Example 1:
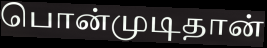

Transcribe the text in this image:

பொன்முடிதான்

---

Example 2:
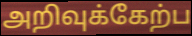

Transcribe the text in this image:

அறிவுக்கேற்ப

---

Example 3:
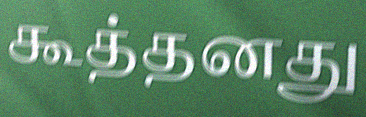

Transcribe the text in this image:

கூத்தனது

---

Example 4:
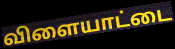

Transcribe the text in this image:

விளையாட்டை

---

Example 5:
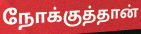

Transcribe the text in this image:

நோக்குத்தான்